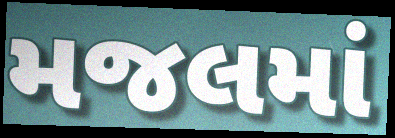
મજલમાં